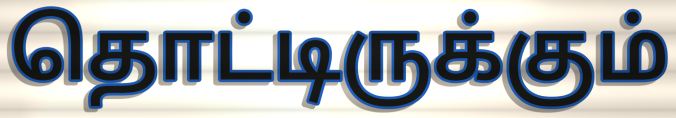
தொட்டிருக்கும்